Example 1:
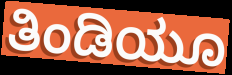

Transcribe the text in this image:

ತಿಂಡಿಯೂ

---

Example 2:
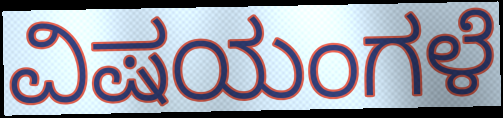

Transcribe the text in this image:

ವಿಷಯಂಗಳೆ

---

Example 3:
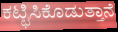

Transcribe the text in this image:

ಕಟ್ಟಿಸಿಕೊಡುತ್ತಾನೆ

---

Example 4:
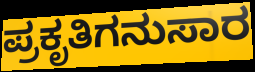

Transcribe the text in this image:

ಪ್ರಕೃತಿಗನುಸಾರ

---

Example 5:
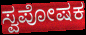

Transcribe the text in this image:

ಸ್ವಪೋಷಕ